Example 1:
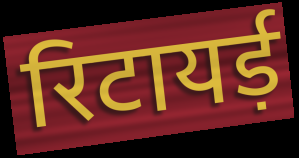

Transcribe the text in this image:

रिटायर्ड़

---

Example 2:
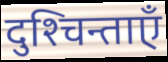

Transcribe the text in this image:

दुश्चिन्ताएँ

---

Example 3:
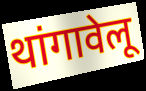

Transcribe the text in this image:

थांगावेलू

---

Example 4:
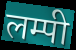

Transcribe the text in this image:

लम्पी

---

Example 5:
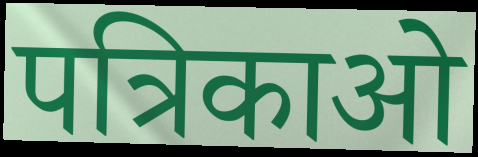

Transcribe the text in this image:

पत्रिकाओ